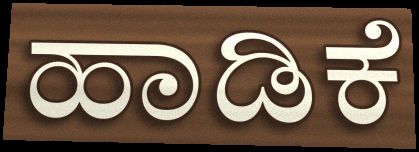
ಹಾಡಿಕೆ